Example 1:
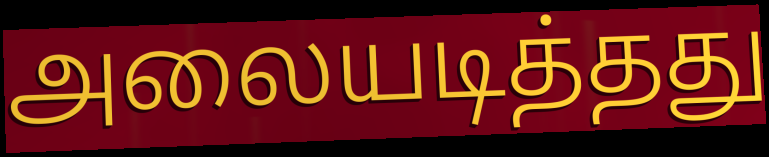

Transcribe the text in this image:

அலையடித்தது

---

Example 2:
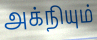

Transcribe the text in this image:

அக்நியும்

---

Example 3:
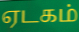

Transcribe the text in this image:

ஏடகம்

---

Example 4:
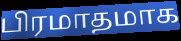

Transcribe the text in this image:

பிரமாதமாக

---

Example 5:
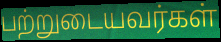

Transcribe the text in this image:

பற்றுடையவர்கள்